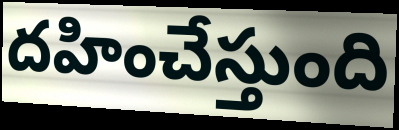
దహించేస్తుంది